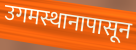
उगमस्थानापासून